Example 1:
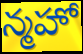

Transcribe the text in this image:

న్మహో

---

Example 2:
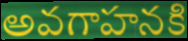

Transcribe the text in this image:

అవగాహనకి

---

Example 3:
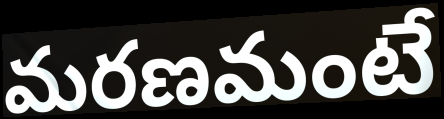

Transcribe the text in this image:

మరణమంటే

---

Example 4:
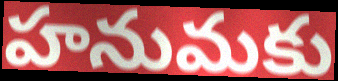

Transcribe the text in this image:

హనుమకు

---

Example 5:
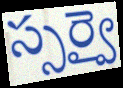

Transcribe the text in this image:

స్సర్వై